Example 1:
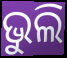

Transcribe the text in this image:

ଭୁଲି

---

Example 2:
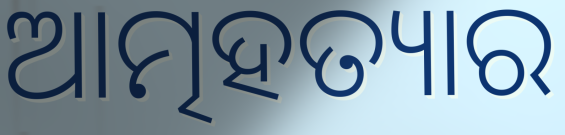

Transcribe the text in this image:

ଆତ୍ମହତ୍ୟାର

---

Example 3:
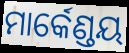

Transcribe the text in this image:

ମାର୍କେଣ୍ଡୟ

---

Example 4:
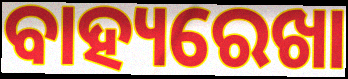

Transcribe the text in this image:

ବାହ୍ୟରେଖା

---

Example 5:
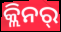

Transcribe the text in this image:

କ୍ଲିନର୍